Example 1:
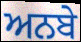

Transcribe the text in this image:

ਅਨਬੇ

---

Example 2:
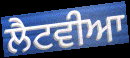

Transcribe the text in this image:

ਲੈਟਵੀਆ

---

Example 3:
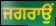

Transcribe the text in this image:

ਜਗਰਾਉਂ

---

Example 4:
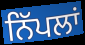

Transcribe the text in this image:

ਨਿੱਪਲਾਂ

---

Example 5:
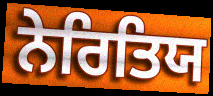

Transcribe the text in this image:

ਨੇਰਿਤਿਯ